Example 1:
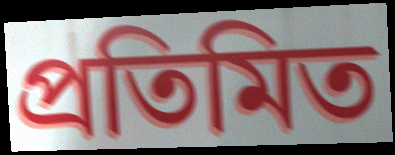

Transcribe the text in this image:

প্রতিমিত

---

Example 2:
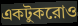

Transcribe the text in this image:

একটুকরোও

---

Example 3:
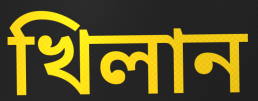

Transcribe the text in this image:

খিলান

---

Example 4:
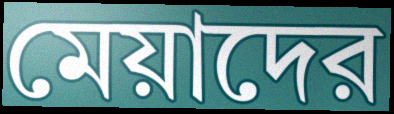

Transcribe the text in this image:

মেয়াদের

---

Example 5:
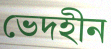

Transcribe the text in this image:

ভেদহীন